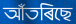
আঁতৰিছে